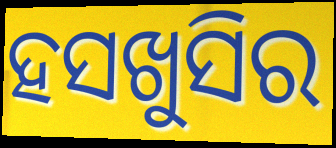
ହସଖୁସିର